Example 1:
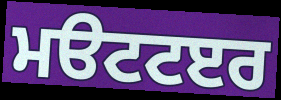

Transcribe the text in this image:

ਮੳਟਟੲਰ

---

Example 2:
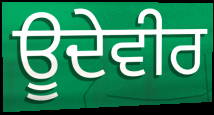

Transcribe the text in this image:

ਊਦੇਵੀਰ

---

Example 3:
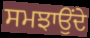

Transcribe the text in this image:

ਸਮਝਾਉੰਦੇ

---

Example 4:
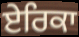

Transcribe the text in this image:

ਏਰਿਕਾ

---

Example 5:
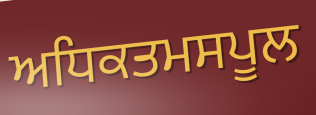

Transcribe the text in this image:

ਅਧਿਕਤਮਸਪੂਲ